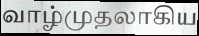
வாழ்முதலாகிய